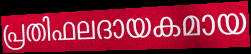
പ്രതിഫലദായകമായ